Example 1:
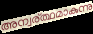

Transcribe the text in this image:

അന്വര്ത്ഥമാകുന്നു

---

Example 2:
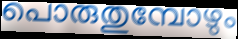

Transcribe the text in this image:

പൊരുതുമ്പോഴും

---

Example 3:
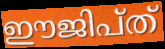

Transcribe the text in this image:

ഈജിപ്ത്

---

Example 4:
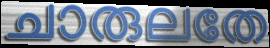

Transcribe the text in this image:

ചാരുലതേ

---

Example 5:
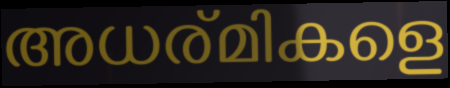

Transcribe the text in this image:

അധര്മികളെ